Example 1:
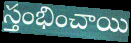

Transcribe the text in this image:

స్తంభించాయి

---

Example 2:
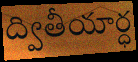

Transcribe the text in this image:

ద్వితీయార్ధ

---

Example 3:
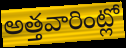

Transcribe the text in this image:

అత్తవారింట్లో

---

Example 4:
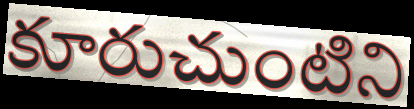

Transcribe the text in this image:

కూరుచుంటిని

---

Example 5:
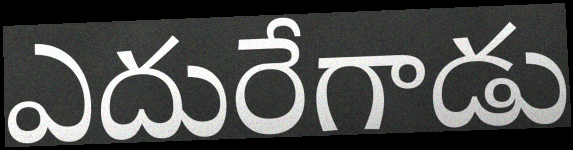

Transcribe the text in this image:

ఎదురేగాడు